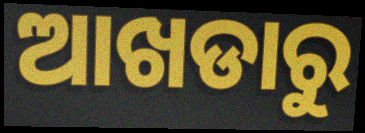
ଆଖଡାରୁ